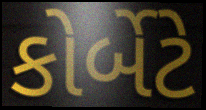
કોર્બેટે